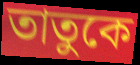
তাতুকে